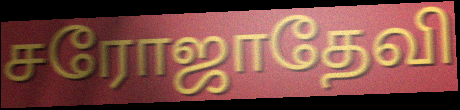
சரோஜாதேவி